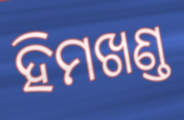
ହିମଖଣ୍ଡ